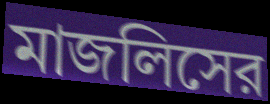
মাজলিসের